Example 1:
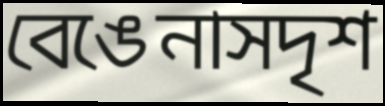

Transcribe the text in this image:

বেঙেনাসদৃশ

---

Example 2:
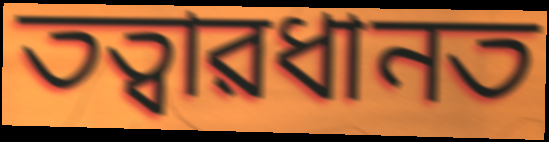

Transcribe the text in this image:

তত্বাৱধানত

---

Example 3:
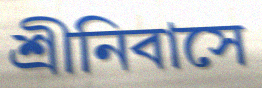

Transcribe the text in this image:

শ্ৰীনিবাসে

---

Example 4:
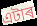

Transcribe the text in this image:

এটাৰ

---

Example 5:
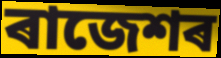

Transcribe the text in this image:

ৰাজেশৰ